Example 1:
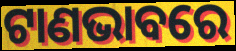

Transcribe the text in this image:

ଟାଣଭାବରେ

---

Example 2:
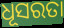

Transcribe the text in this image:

ଧୂସରତା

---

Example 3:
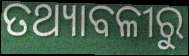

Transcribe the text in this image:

ତଥ୍ୟାବଳୀରୁ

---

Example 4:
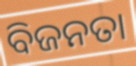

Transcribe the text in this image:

ବିଜନତା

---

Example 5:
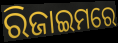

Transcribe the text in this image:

ରିଜାଇମରେ